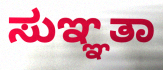
ಸುಞ್ಞತಾ